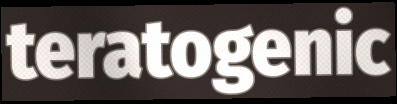
teratogenic